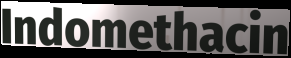
Indomethacin